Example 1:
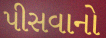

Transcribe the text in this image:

પીસવાનો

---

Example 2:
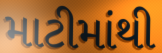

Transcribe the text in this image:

માટીમાંથી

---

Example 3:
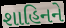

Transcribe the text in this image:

શાહિનને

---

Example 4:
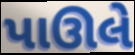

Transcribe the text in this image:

પાઊલે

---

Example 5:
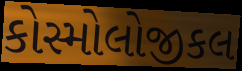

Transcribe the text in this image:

કોસ્મોલોજીકલ